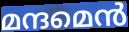
മന്ദമെൻ